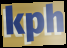
kph